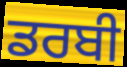
ਡਰਬੀ